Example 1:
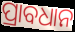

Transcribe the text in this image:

ପ୍ରାବଧାନ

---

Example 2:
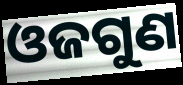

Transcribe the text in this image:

ଓଜଗୁଣ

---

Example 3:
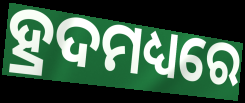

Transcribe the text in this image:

ହ୍ରଦମଧ୍ୟରେ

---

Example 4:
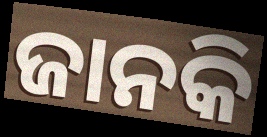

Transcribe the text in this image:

ଜାନକି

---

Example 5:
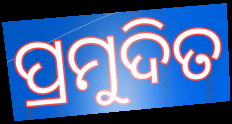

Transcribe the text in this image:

ପ୍ରମୁଦିତ